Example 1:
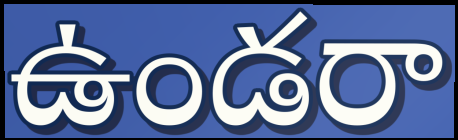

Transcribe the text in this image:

ఉండరా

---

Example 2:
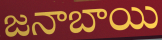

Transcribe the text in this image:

జనాబాయి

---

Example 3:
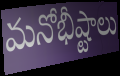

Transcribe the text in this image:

మనోభీష్టాలు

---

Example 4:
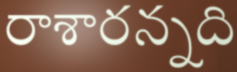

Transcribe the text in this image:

రాశారన్నది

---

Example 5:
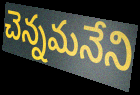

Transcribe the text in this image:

చెన్నమనేని